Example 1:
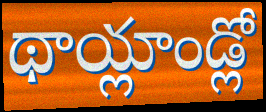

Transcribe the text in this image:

థాయ్లాండ్లో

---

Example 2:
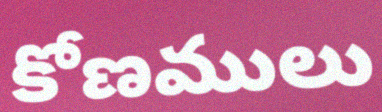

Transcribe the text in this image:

కోణములు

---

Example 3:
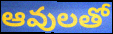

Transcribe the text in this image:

ఆవులతో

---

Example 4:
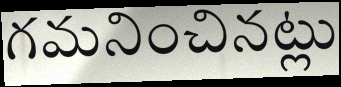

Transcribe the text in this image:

గమనించినట్లు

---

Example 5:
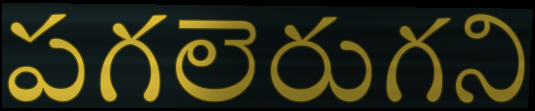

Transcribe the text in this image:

పగలెరుగని